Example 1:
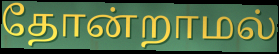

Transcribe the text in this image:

தோன்றாமல்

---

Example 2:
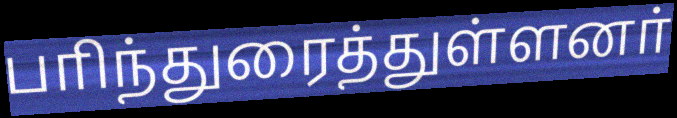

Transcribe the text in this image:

பரிந்துரைத்துள்ளனர்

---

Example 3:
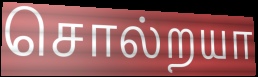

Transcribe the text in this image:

சொல்றயா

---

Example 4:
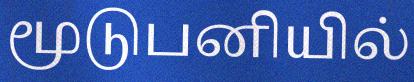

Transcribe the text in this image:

மூடுபனியில்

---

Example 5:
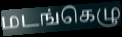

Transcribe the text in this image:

மடங்கெழு